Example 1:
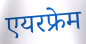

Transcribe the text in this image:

एयरफ्रेम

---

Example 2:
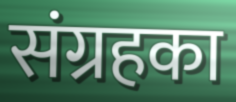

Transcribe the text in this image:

संग्रहका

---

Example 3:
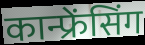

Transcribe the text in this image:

कान्फ्रेंसिंग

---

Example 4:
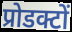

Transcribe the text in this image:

प्रोडक्टों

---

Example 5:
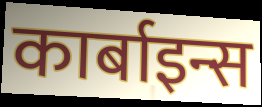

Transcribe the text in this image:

कार्बाइन्स